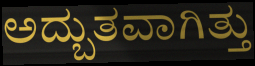
ಅದ್ಬುತವಾಗಿತ್ತು